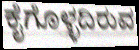
ಕೈಗೊಳ್ಳದಿರುವ